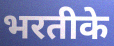
भरतीके